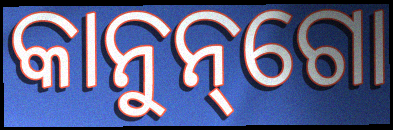
କାନୁନ୍‌ଗୋ